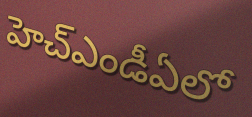
హెచ్ఎండీఏలో